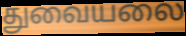
துவையலை